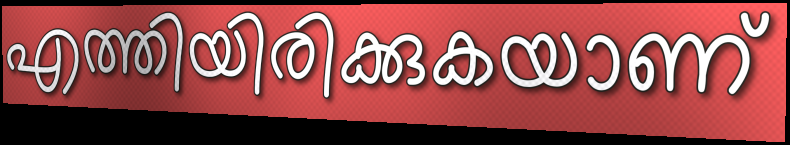
എത്തിയിരിക്കുകയാണ്